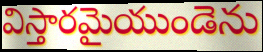
విస్తారమైయుండెను